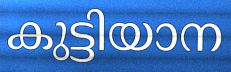
കുട്ടിയാന